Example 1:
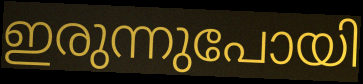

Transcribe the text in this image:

ഇരുന്നുപോയി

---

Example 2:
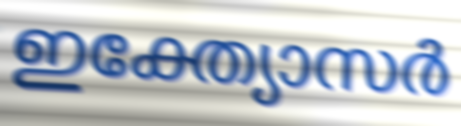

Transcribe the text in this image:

ഇക്ത്യോസർ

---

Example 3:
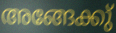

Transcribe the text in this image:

അങ്ങേക്കു്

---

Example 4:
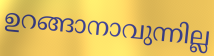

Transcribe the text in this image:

ഉറങ്ങാനാവുന്നില്ല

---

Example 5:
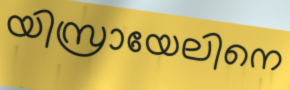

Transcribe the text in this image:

യിസ്രായേലിനെ